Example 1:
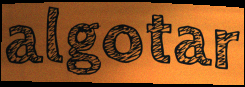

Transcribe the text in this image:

algotar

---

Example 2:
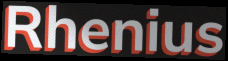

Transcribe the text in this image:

Rhenius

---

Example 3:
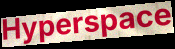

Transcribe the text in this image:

Hyperspace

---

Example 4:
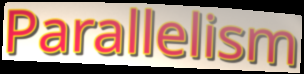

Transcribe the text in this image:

Parallelism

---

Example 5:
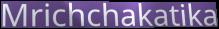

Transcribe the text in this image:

Mrichchakatika